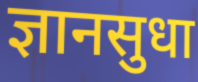
ज्ञानसुधा